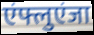
एंफ्लुएंजा